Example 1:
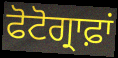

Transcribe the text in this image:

ਫੋਟੋਗ੍ਰਾਫ਼ਾਂ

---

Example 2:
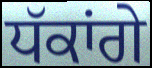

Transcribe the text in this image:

ਧੱਕਾਂਗੇ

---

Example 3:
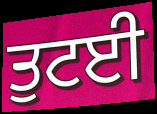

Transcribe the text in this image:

ਤੁਟਈ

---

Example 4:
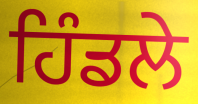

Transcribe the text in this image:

ਹਿੰਡਲੇ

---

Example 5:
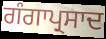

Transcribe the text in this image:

ਗੰਗਾਪ੍ਰਸਾਦ